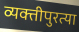
व्यक्तीपुरत्या